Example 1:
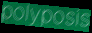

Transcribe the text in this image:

polyposis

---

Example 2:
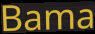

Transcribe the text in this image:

Bama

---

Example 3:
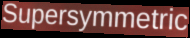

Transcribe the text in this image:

Supersymmetric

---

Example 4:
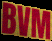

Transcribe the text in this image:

BVM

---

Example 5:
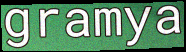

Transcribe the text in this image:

gramya